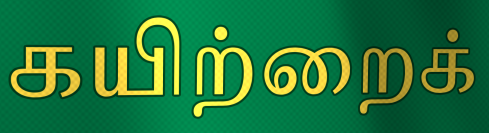
கயிற்றைக்